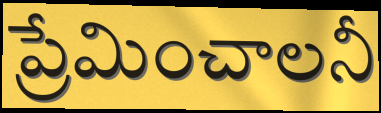
ప్రేమించాలనీ